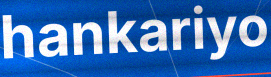
hankariyo